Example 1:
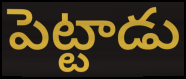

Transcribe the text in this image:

పెట్టాడు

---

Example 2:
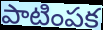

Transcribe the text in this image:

పాటింపక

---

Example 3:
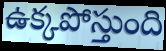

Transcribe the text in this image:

ఉక్కపోస్తుంది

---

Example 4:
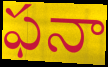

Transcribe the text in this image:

ఫనా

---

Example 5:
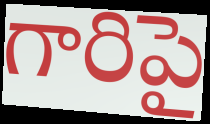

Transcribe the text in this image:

గారిపై